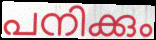
പനിക്കും